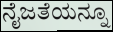
ನೈಜತೆಯನ್ನೂ